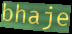
bhaje